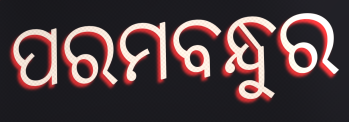
ପରମବନ୍ଧୁର